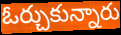
ఓర్చుకున్నారు